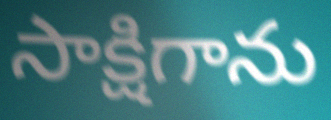
సాక్షిగాను